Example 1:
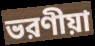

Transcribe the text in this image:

ভরণীয়া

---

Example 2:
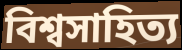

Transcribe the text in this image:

বিশ্বসাহিত্য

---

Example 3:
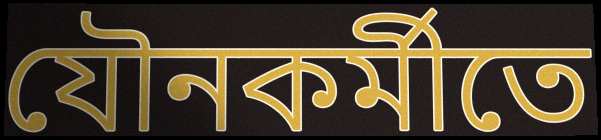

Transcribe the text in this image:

যৌনকর্মীতে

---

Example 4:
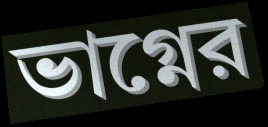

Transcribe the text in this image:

ভাগ্নের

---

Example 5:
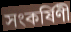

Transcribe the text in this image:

সংকর্ষিণী